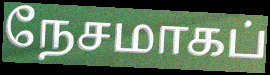
நேசமாகப்